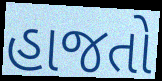
હાજતો